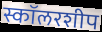
स्कॉलरशीप